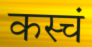
कस्चं